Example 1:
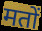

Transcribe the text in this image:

मतों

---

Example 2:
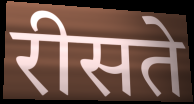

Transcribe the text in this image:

रीसते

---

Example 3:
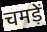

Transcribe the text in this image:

चमड़ें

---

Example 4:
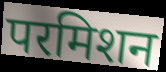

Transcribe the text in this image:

परमिशन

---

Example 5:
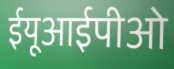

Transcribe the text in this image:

ईयूआईपीओ